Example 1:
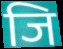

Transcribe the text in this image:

जि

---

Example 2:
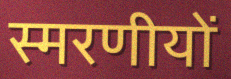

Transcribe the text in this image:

स्मरणीयों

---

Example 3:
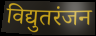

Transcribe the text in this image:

विद्युतरंजन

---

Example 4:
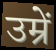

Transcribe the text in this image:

उम्रें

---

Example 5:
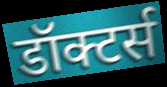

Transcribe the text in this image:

डॉक्टर्स